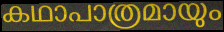
കഥാപാത്രമായും